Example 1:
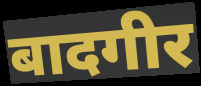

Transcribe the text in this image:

बादगीर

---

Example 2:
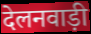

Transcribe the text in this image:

देलनवाड़ी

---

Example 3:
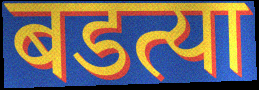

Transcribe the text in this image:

बडत्या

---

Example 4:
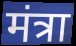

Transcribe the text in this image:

मंत्रा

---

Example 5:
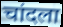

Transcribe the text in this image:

चांदला